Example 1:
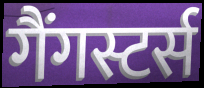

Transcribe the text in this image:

गैंगस्टर्स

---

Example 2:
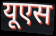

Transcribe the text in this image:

यूएस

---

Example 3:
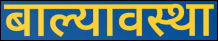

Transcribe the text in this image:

बाल्यावस्था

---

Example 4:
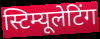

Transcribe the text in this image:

स्टिम्यूलेटिंग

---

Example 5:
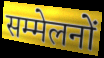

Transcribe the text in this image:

सम्मेलनों